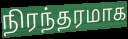
நிரந்தரமாக